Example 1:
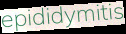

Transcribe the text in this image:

epididymitis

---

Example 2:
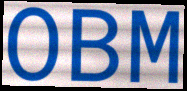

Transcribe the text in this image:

OBM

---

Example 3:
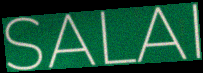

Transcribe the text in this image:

SALAI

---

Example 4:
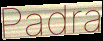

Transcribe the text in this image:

Padra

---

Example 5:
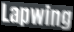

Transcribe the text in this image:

Lapwing